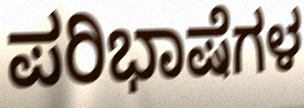
ಪರಿಭಾಷೆಗಳ